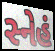
સ્નેહં